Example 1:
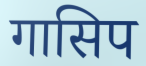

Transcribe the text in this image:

गासिप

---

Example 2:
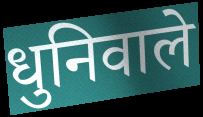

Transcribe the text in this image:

धुनिवाले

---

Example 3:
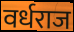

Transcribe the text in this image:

वर्धराज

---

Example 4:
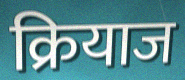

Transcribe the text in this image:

क्रियाज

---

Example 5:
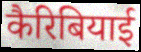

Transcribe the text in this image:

कैरिबियाई